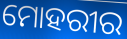
ମୋହରୀର